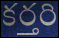
కర్తరి